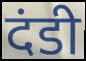
दंडी